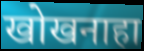
खोखनाहा